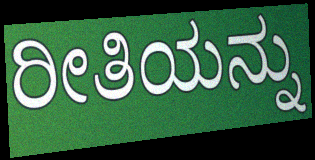
ರೀತಿಯನ್ನು